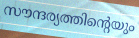
സൗന്ദര്യത്തിന്റെയും